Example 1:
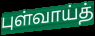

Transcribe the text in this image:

புள்வாய்த்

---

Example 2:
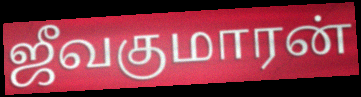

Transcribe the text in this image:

ஜீவகுமாரன்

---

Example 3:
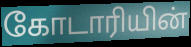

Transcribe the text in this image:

கோடாரியின்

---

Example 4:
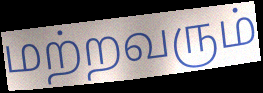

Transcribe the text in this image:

மற்றவரும்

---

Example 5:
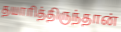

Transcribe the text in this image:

தயாரித்திருந்தான்